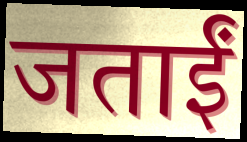
जताईं